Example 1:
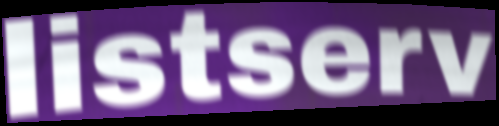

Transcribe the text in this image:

listserv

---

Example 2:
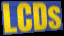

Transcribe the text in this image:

LCDs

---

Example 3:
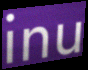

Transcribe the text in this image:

inu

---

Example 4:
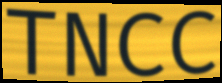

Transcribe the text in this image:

TNCC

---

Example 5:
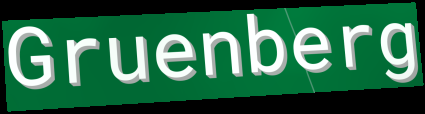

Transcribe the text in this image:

Gruenberg